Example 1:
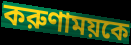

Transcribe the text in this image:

করুণাময়কে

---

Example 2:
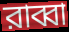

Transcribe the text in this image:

রাব্বা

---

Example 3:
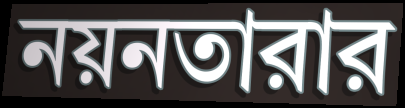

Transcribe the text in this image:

নয়নতারার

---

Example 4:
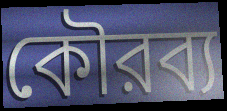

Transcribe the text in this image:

কৌরব্য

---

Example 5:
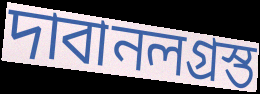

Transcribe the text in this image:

দাবানলগ্রস্ত